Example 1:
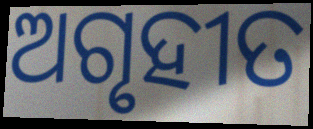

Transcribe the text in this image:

ଅଗୃହୀତ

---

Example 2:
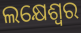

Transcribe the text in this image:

ଲକ୍ଷେଶ୍ଵର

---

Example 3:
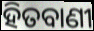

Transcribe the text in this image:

ହିତବାଣୀ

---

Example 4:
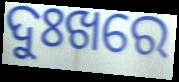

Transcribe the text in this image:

ଦୁଃଖରେ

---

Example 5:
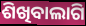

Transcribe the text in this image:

ଶିଖିବାଲାଗି